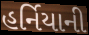
હર્નિયાની